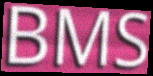
BMS